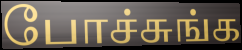
போச்சுங்க